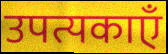
उपत्यकाएँ